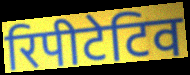
रिपीटेटिव